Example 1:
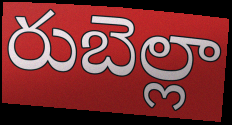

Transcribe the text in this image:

రుబెల్లా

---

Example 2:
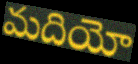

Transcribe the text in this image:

మదియో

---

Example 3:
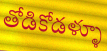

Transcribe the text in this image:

తోడికోడళ్ళూ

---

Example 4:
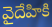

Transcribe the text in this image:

వైదేహికి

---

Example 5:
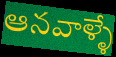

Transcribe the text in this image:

ఆనవాళ్ళే